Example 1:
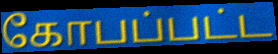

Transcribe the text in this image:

கோபப்பட்ட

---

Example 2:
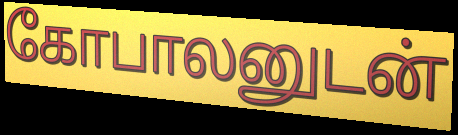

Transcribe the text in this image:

கோபாலனுடன்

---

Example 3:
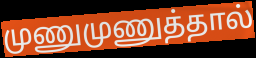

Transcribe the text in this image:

முணுமுணுத்தால்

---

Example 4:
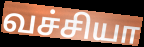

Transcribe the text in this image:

வச்சியா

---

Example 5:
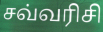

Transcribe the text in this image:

சவ்வரிசி